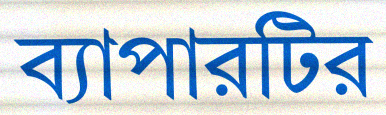
ব্যাপারটির